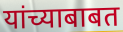
यांच्याबाबत